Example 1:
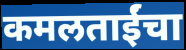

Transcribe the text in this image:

कमलताईंचा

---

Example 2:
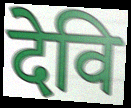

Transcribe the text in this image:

देवि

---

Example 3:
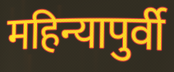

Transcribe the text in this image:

महिन्यापुर्वी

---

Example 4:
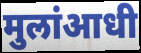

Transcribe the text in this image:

मुलांआधी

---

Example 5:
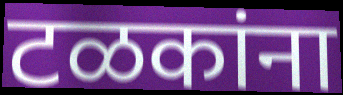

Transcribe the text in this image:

टळकांना